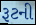
રૂટની